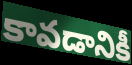
కావడానికీ